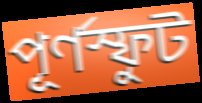
পূর্ণস্ফুট